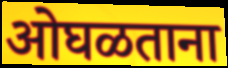
ओघळताना